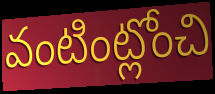
వంటింట్లోంచి